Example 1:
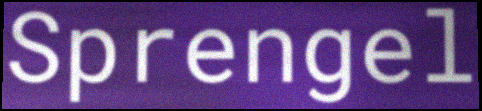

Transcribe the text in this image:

Sprengel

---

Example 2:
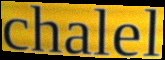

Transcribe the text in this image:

chalel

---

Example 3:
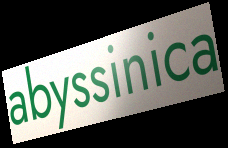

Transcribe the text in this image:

abyssinica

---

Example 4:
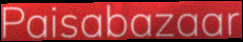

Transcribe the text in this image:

Paisabazaar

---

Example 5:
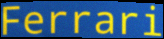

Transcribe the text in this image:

Ferrari